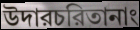
উদারচরিতানাং